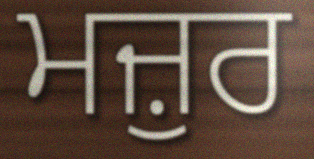
ਮਜ਼ੁਰ